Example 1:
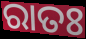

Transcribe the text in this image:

ରାତଃ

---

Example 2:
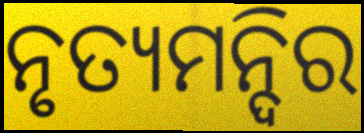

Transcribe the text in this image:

ନୃତ୍ୟମନ୍ଦିର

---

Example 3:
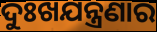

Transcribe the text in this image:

ଦୁଃଖଯନ୍ତ୍ରଣାର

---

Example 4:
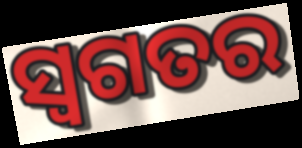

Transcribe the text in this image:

ସ୍ୱଗତର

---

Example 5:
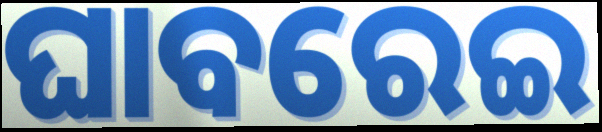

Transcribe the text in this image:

ଘାବରେଇ